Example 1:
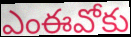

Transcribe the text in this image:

ఎంఈవోకు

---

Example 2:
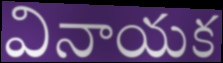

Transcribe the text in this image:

వినాయక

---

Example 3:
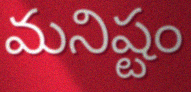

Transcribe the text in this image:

మనిష్టం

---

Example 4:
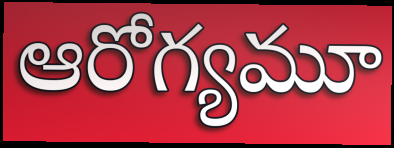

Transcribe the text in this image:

ఆరోగ్యమూ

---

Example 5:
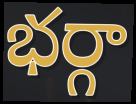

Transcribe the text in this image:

భర్గా